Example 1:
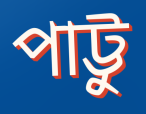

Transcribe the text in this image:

পাট্টু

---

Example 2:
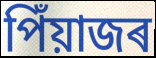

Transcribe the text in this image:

পিঁয়াজৰ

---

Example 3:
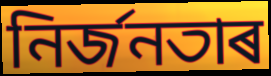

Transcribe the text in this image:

নিৰ্জনতাৰ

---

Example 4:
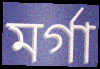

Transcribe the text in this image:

মৰ্গা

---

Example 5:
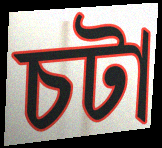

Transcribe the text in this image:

চটা